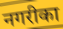
नगरीका